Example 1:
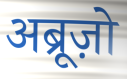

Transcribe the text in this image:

अब्रूज़ो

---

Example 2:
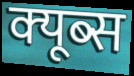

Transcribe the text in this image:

क्यूब्स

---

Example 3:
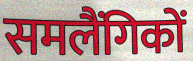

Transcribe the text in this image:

समलैंगिकों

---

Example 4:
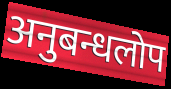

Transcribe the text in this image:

अनुबन्धलोप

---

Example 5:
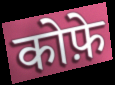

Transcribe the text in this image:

कोफ़े